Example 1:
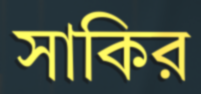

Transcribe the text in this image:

সাকির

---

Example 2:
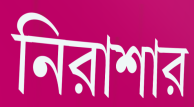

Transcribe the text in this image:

নিরাশার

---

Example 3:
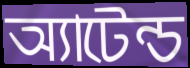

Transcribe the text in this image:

অ্যাটেন্ড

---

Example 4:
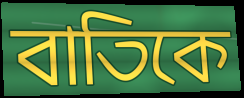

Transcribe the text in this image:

বাতিকে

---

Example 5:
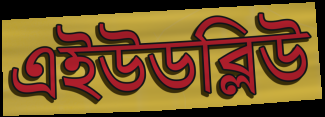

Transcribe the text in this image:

এইউডব্লিউ